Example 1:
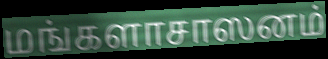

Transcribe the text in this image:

மங்களாசாஸனம்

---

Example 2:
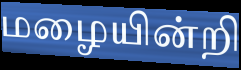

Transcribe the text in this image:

மழையின்றி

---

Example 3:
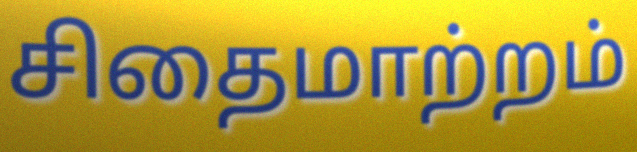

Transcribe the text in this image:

சிதைமாற்றம்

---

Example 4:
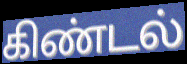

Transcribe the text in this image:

கிண்டல்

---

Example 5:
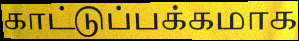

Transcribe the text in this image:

காட்டுப்பக்கமாக